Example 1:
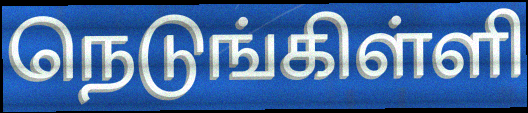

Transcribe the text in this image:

நெடுங்கிள்ளி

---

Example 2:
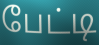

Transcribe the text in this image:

பேட்டி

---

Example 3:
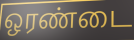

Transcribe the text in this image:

ஒரண்டை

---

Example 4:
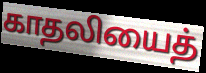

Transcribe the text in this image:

காதலியைத்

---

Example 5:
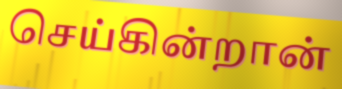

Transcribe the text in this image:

செய்கின்றான்